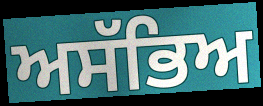
ਅਸੱਭਿਅ